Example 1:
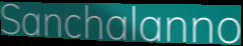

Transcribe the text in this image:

Sanchalanno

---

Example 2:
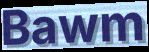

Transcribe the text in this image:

Bawm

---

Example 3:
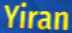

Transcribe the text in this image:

Yiran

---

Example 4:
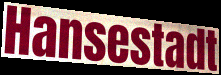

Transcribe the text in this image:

Hansestadt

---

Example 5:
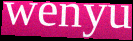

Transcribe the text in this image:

wenyu